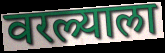
वरल्याला